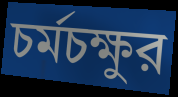
চর্মচক্ষুর